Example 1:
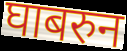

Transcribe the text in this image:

घाबरुन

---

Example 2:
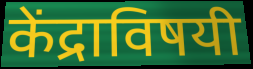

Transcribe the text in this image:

केंद्राविषयी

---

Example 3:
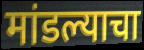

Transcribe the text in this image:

मांडल्याचा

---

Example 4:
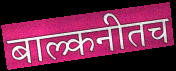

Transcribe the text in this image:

बाल्कनीतच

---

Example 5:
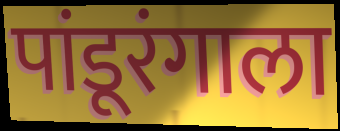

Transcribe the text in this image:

पांडूरंगाला